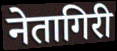
नेतागिरी